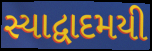
સ્યાદ્વાદમયી